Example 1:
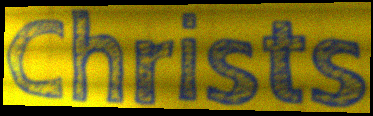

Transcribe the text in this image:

Christs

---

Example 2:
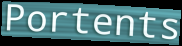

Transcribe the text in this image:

Portents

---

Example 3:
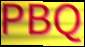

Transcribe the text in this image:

PBQ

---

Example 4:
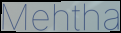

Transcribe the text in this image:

Mehtha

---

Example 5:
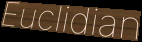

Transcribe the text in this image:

Euclidian